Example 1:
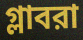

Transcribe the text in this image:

গ্লাবরা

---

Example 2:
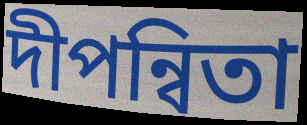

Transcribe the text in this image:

দীপন্বিতা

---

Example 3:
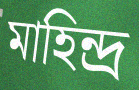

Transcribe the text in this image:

মাহিন্দ্র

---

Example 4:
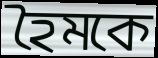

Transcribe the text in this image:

হৈমকে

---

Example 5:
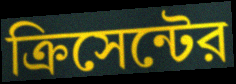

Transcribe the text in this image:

ক্রিসেন্টের